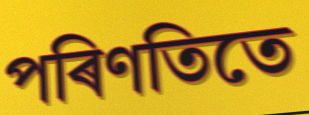
পৰিণতিতে